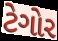
ટેગોર